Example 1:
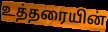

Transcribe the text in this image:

உத்தரையின்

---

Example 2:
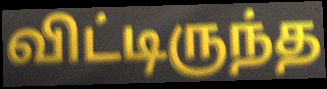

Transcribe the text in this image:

விட்டிருந்த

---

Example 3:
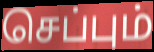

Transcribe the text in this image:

செப்பும்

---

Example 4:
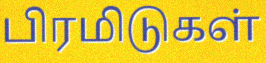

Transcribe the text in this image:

பிரமிடுகள்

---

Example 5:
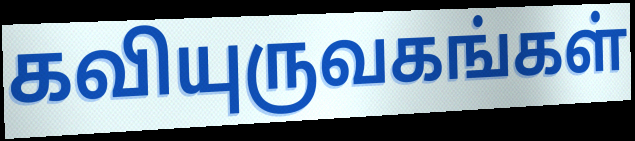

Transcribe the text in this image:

கவியுருவகங்கள்